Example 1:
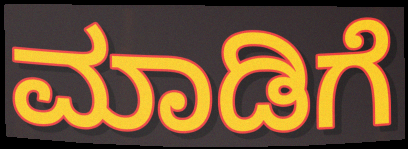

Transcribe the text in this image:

ಮಾಡಿಗೆ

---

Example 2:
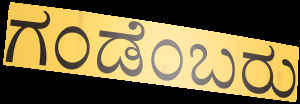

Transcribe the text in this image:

ಗಂಡೆಂಬರು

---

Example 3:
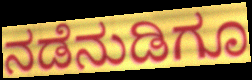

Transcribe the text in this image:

ನಡೆನುಡಿಗೂ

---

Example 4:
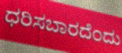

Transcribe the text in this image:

ಧರಿಸಬಾರದೆಂದು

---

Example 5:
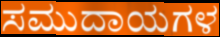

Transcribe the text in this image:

ಸಮುದಾಯಗಳ